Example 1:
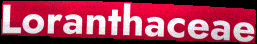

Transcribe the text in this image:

Loranthaceae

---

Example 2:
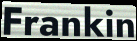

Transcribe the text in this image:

Frankin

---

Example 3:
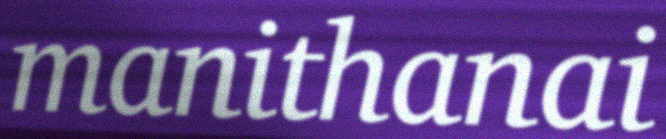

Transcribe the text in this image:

manithanai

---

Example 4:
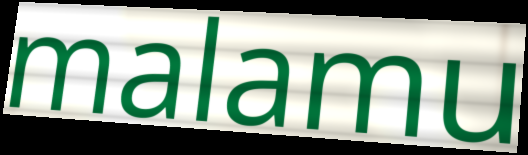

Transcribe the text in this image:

malamu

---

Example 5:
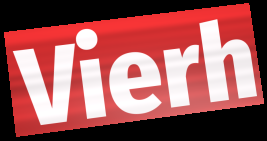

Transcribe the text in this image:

Vierh